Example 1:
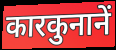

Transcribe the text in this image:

कारकुनानें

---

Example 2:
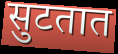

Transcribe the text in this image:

सुटतात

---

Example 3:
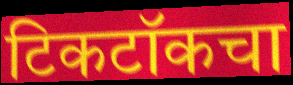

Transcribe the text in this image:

टिकटॉकचा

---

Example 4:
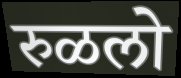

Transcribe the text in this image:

रुळलो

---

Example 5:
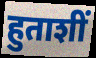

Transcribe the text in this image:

हुताशीं